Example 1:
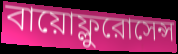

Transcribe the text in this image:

বায়োফ্লুরোসেন্স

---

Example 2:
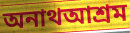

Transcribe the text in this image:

অনাথআশ্রম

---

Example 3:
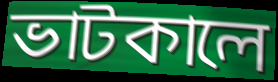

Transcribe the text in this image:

ভাটকালে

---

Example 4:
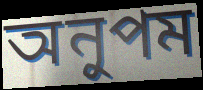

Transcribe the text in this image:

অনুপম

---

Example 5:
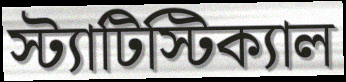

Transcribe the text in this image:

স্ট্যাটিস্টিক্যাল